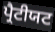
ਪ੍ਰੈਟੀਯਟ